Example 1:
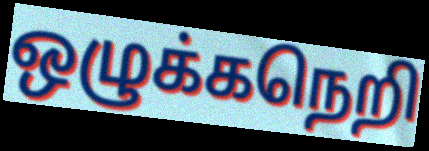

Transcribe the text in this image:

ஒழுக்கநெறி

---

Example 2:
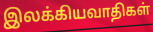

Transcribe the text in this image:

இலக்கியவாதிகள்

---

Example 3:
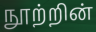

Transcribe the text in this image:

நூற்றின்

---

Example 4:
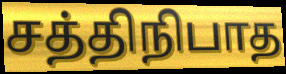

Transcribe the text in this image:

சத்திநிபாத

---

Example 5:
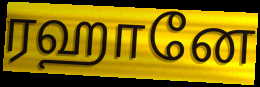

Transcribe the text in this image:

ரஹானே